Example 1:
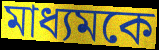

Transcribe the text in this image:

মাধ্যমকে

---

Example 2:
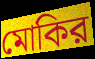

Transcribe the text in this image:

মোকির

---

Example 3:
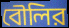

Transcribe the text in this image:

বৌলির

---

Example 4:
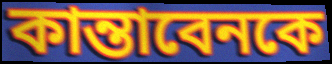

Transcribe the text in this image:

কান্তাবেনকে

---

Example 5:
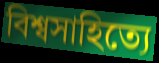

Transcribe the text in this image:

বিশ্বসাহিত্যে